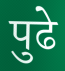
पुढे